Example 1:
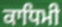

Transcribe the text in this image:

ਕਾਧਿਮੀ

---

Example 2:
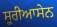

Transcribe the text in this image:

ਸੂਰੀਆਸੇਨ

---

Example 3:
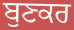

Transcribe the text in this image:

ਬੁਣਕਰ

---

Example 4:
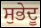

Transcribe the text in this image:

ਸੁਭੇਦੂ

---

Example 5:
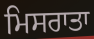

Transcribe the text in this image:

ਮਿਸਰਾਤਾ